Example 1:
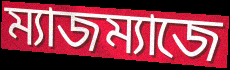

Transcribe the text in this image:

ম্যাজম্যাজে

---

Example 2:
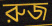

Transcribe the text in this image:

রুজ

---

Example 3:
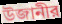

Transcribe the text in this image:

উজানীর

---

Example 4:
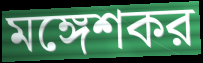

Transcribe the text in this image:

মঙ্গেশকর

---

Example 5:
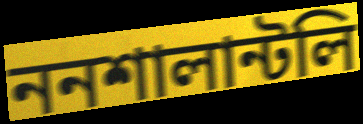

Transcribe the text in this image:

ননশালান্টলি